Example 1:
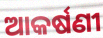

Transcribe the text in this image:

ଆକର୍ଷଣୀ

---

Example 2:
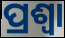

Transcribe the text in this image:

ପ୍ରଶ୍ଵା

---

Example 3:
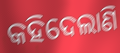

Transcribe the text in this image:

କହିଦେଲାଣି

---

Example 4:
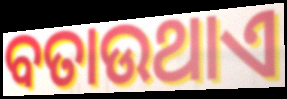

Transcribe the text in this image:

ବତାଉଥାଏ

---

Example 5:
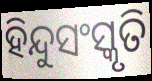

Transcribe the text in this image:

ହିନ୍ଦୁସଂସ୍କୃତି